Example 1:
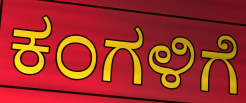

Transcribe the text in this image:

ಕಂಗಳಿಗೆ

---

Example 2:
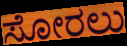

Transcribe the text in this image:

ಸೋರಲು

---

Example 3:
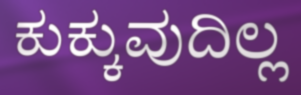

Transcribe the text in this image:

ಕುಕ್ಕುವುದಿಲ್ಲ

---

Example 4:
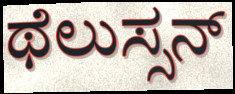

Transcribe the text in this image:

ಥೆಲುಸ್ಸನ್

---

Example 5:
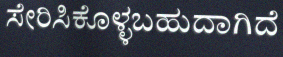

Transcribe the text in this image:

ಸೇರಿಸಿಕೊಳ್ಳಬಹುದಾಗಿದೆ